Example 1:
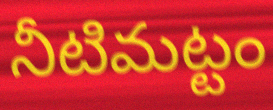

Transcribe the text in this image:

నీటిమట్టం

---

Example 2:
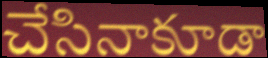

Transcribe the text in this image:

చేసినాకూడా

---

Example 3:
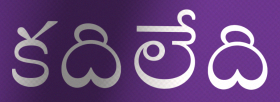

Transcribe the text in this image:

కదిలేది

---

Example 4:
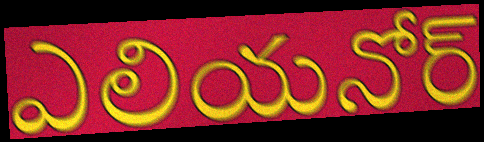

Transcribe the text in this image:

ఎలియనోర్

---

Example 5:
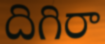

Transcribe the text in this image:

దిగిరా